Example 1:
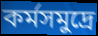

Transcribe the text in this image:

কর্মসমুদ্রে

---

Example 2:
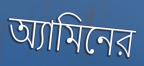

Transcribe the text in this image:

অ্যামিনের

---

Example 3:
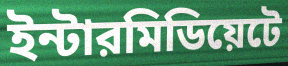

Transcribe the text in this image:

ইন্টারমিডিয়েটে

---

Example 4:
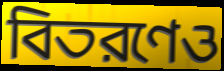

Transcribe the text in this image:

বিতরণেও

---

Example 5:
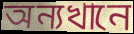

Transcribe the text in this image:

অন্যখানে